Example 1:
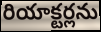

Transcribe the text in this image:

రియాక్టర్లను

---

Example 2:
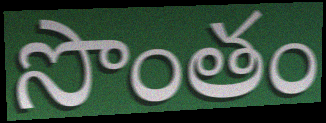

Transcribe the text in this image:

సొంతం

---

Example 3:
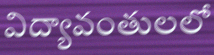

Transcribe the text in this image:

విద్యావంతులలో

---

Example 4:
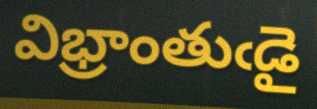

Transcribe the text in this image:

విభ్రాంతుఁడై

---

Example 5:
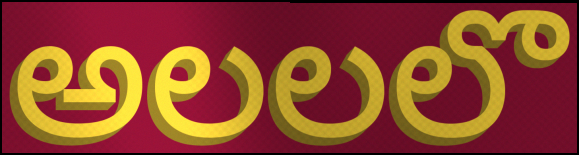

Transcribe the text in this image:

అలలలొ